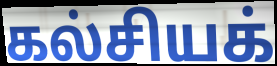
கல்சியக்